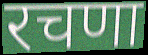
रचणा